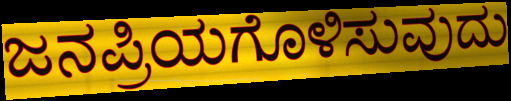
ಜನಪ್ರಿಯಗೊಳಿಸುವುದು